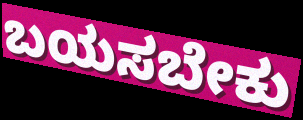
ಬಯಸಬೇಕು